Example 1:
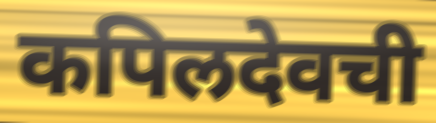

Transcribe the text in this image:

कपिलदेवची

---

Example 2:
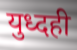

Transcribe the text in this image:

युध्दही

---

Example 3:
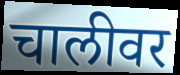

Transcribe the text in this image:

चालीवर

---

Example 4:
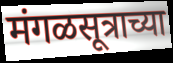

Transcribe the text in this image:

मंगळसूत्राच्या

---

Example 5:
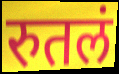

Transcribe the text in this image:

रुतलं